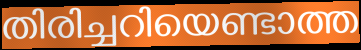
തിരിച്ചറിയെണ്ടാത്ത